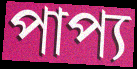
পাপ্য